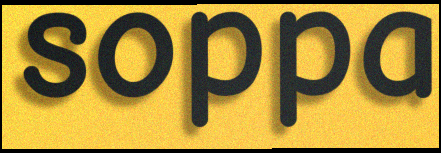
soppa